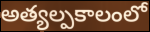
అత్యల్పకాలంలో